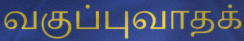
வகுப்புவாதக்